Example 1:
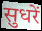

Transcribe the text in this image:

सुधरें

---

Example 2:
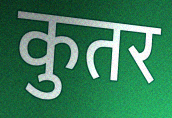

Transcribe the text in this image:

कुतर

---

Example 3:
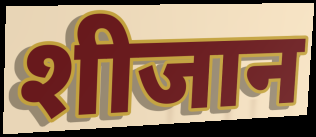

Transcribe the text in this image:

शीजान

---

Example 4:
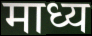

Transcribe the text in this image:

माध्य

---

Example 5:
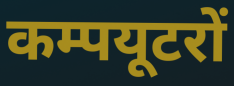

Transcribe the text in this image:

कम्पयूटरों